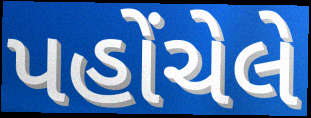
પહોંચેલે